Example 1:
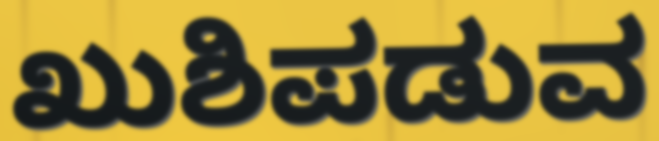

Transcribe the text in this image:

ಖುಶಿಪಡುವ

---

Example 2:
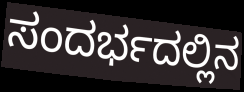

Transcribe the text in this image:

ಸಂದರ್ಭದಲ್ಲಿನ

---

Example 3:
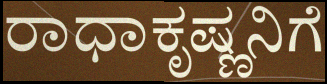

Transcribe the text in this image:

ರಾಧಾಕೃಷ್ಣನಿಗೆ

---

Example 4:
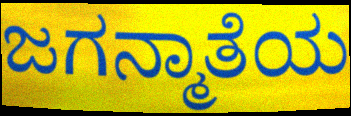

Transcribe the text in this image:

ಜಗನ್ಮಾತೆಯ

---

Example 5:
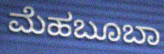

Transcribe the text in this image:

ಮೆಹಬೂಬಾ